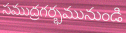
సముద్రగర్భమునుండి